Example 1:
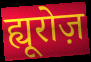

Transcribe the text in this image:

ह्यूरोज़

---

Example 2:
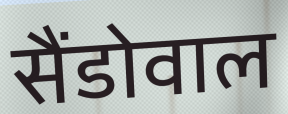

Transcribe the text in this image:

सैंडोवाल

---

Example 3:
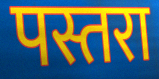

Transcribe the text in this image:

पस्तरा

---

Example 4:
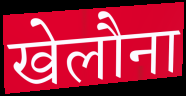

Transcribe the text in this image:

खेलौना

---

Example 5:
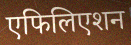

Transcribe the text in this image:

एफिलिएशन